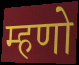
म्हणो